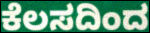
ಕೆಲಸದಿಂದ